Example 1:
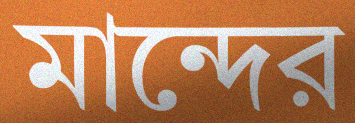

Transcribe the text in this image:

মান্দের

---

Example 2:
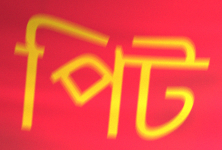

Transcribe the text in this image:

পিট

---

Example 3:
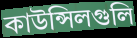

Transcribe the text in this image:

কাউন্সিলগুলি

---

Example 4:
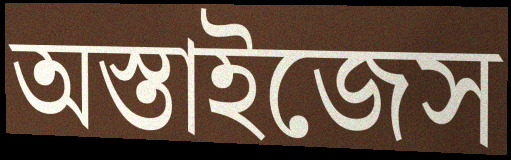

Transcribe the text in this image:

অস্তাইজেস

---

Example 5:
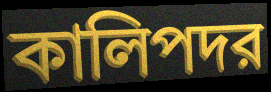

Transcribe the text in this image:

কালিপদর